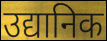
उद्यानिक